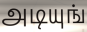
அடியுங்